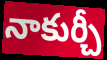
నాకుర్చీ